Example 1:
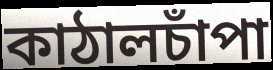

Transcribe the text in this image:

কাঠালচাঁপা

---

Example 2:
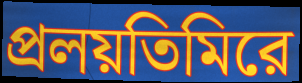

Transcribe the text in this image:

প্রলয়তিমিরে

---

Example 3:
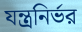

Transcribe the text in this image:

যন্ত্রনির্ভর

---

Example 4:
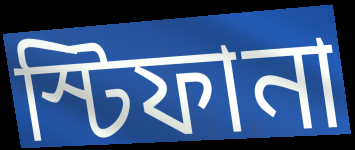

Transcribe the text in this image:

স্টিফানা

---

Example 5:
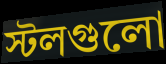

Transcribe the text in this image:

স্টলগুলো